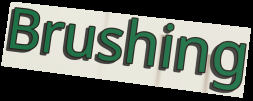
Brushing